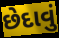
છેદાવું